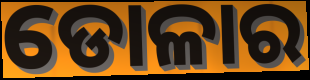
ଡୋଳାର